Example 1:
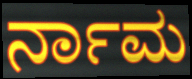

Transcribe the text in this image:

ರ್ನಾಮ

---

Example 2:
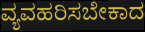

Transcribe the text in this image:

ವ್ಯವಹರಿಸಬೇಕಾದ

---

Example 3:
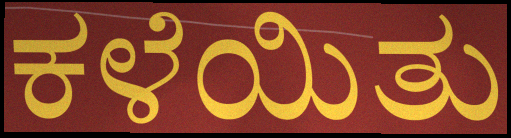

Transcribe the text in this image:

ಕಳೆಯಿತು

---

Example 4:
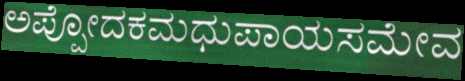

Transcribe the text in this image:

ಅಪ್ಪೋದಕಮಧುಪಾಯಸಮೇವ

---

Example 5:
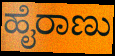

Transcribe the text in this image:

ಹೈರಾಣು